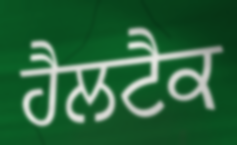
ਹੈਲਟੈਕ